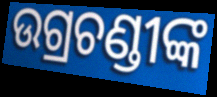
ଉଗ୍ରଚଣ୍ଡୀଙ୍କ